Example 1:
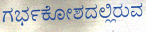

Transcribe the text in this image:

ಗರ್ಭಕೋಶದಲ್ಲಿರುವ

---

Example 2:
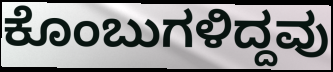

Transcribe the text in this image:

ಕೊಂಬುಗಳಿದ್ದವು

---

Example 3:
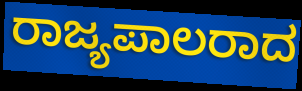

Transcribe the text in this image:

ರಾಜ್ಯಪಾಲರಾದ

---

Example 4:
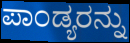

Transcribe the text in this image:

ಪಾಂಡ್ಯರನ್ನು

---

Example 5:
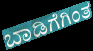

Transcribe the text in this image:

ಬಾಡಿಗೆಗಿಂತ